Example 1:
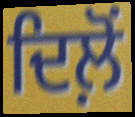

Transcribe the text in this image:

ਦਿਲ਼ੋਂ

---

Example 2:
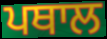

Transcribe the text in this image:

ਪਥਾਲ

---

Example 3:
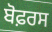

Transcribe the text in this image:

ਬੋਫ਼ਰਸ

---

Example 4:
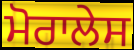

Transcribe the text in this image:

ਮੋਰਾਲੇਸ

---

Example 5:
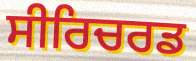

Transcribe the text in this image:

ਸੀਰਿਚਰਡ